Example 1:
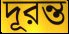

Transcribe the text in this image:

দূরন্ত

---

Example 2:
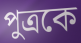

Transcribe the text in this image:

পুত্রকে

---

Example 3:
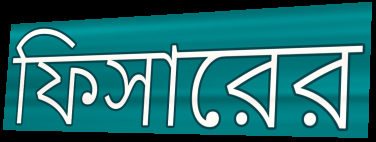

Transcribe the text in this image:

ফিসারের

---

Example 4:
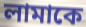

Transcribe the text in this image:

লামাকে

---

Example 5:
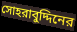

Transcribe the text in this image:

সোহরাবুদ্দিনের